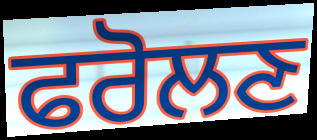
ਫਰੋਲਣ